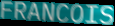
FRANCOIS